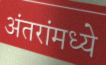
अंतरांमध्ये